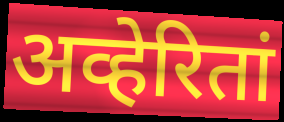
अव्हेरितां